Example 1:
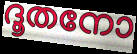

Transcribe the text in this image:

ദൂതനോ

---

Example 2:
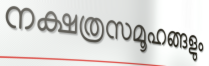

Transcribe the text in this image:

നക്ഷത്രസമൂഹങ്ങളും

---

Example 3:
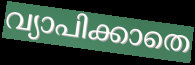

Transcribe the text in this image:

വ്യാപിക്കാതെ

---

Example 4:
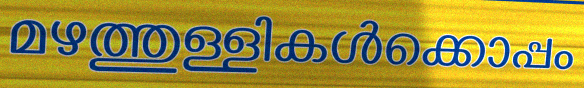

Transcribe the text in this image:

മഴത്തുള്ളികൾക്കൊപ്പം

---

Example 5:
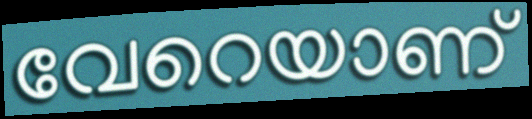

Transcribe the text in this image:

വേറെയാണ്